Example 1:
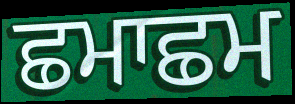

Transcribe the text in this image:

ਛਮਾਛਮ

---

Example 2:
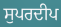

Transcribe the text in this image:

ਸੁਪਰਦੀਪ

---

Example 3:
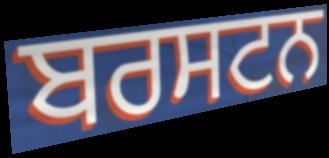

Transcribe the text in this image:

ਬਰਸਟਨ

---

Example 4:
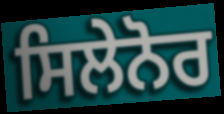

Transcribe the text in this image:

ਸਿਲੇਨੋਰ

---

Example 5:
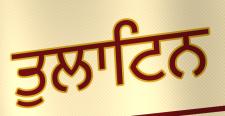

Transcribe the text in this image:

ਤੁਲਾਟਿਨ